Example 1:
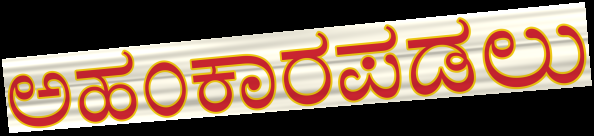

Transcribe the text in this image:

ಅಹಂಕಾರಪಡಲು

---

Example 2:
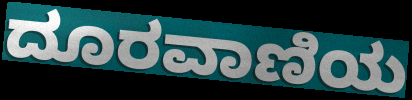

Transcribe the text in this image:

ದೂರವಾಣಿಯ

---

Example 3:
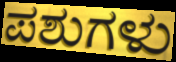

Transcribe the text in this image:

ಪಶುಗಳು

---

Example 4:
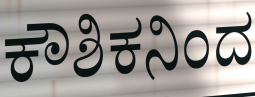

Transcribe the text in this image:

ಕೌಶಿಕನಿಂದ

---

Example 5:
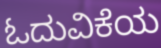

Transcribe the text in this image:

ಓದುವಿಕೆಯ